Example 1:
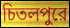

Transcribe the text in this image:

চিতলপুরে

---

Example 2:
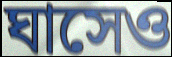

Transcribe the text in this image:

ঘাসেও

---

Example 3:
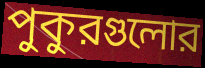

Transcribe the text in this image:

পুকুরগুলোর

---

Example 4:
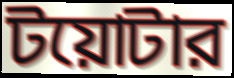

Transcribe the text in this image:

টয়োটার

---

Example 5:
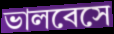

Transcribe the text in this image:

ভালবেসে